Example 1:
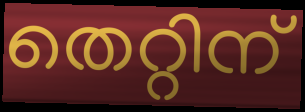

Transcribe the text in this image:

തെറ്റിന്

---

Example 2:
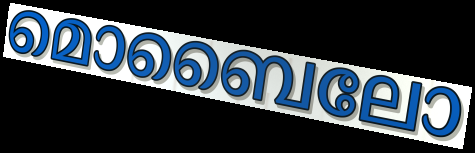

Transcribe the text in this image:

മൊബൈലോ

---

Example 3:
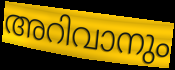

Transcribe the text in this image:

അറിവാനും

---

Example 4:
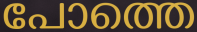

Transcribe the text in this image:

പോത്തെ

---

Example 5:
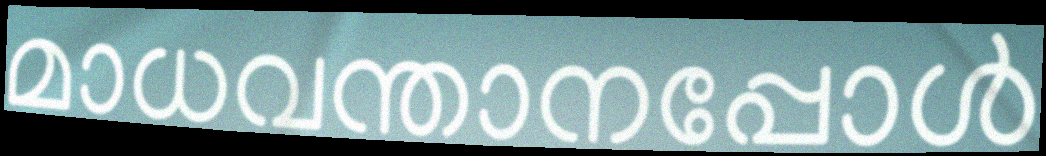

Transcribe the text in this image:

മാധവന്താനപ്പോൾ